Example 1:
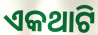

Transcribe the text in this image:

ଏକଥାଟି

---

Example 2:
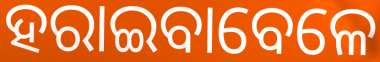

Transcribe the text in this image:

ହରାଇବାବେଳେ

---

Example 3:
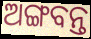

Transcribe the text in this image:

ଅଙ୍ଗବନ୍ତ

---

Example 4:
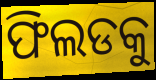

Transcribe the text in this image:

ଫିଲଡକୁ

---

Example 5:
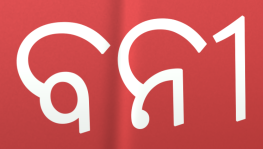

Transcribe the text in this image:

ବନୀ